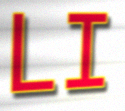
LI